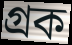
গ্রক